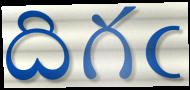
దిగఁ